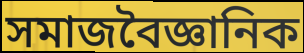
সমাজবৈজ্ঞানিক